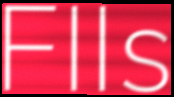
FIIs